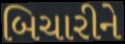
બિચારીને